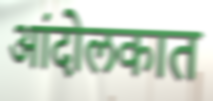
आंदोलकात